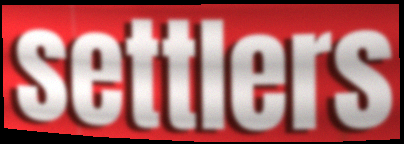
settlers